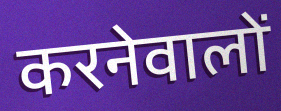
करनेवालों